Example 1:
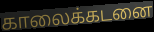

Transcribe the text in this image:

காலைக்கடனை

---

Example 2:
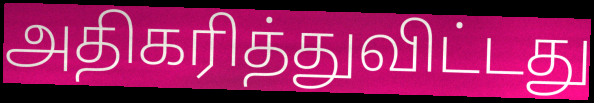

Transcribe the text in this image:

அதிகரித்துவிட்டது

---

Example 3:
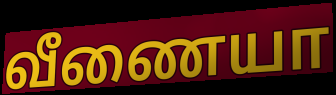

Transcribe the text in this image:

வீணையா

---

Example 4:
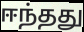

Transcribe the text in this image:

ஈந்தது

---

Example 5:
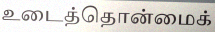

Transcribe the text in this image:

உடைத்தொன்மைக்